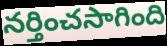
నర్తించసాగింది